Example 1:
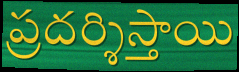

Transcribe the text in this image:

ప్రదర్శిస్తాయి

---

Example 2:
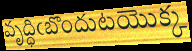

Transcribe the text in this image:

వృద్ధిఁబొందుటయొక్క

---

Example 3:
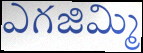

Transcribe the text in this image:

ఎగజిమ్మి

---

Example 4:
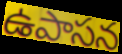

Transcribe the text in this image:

ఉపాసన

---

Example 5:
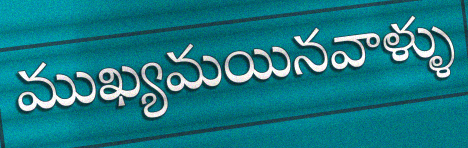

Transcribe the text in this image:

ముఖ్యమయినవాళ్ళు